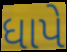
ધાપે